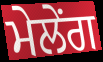
ਮੇਲੇਂਗ